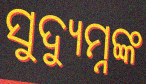
ସୁଦ୍ୟୁମ୍ନଙ୍କ